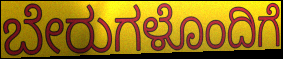
ಬೇರುಗಳೊಂದಿಗೆ